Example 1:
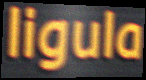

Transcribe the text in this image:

ligula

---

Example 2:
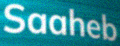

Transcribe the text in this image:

Saaheb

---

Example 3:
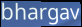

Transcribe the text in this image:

bhargav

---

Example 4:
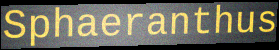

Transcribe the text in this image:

Sphaeranthus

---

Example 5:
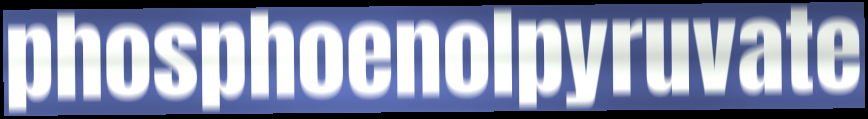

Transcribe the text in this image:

phosphoenolpyruvate